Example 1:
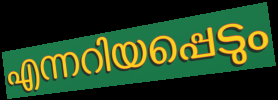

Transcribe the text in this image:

എന്നറിയപ്പെടും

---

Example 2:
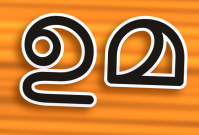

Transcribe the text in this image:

ഉമ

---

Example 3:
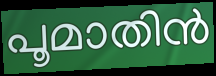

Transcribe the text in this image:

പൂമാതിൻ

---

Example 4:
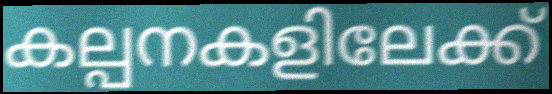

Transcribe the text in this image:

കല്പനകളിലേക്ക്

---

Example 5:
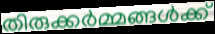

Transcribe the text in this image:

തിരുക്കർമ്മങ്ങൾക്ക്